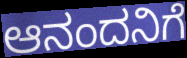
ಆನಂದನಿಗೆ